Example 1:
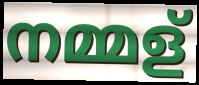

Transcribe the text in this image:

നമ്മള്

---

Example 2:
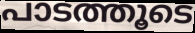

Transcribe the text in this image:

പാടത്തൂടെ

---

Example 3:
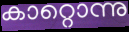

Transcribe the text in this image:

കാറ്റൊന്നു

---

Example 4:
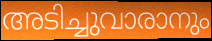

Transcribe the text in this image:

അടിച്ചുവാരാനും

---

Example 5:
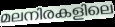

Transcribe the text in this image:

മലനിരകളിലെ